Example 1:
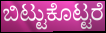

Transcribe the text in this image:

ಬಿಟ್ಟುಕೊಟ್ಟರೆ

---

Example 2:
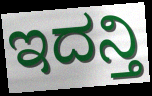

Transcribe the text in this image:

ಇದನ್ತಿ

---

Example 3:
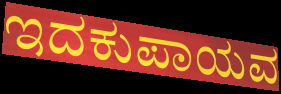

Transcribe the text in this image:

ಇದಕುಪಾಯವ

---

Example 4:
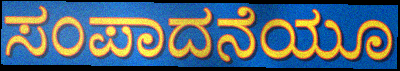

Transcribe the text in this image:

ಸಂಪಾದನೆಯೂ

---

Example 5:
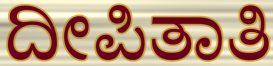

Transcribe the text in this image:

ದೀಪಿತಾತಿ